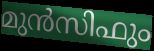
മുൻസിഫും